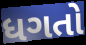
ધગતો